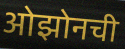
ओझोनची